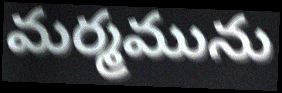
మర్మమును